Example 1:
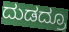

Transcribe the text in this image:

ದುಡದ್ರೂ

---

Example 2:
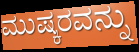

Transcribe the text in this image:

ಮುಷ್ಕರವನ್ನು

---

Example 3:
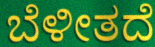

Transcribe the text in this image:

ಬೆಳೀತದೆ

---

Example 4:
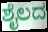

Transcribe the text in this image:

ಶೈಲದ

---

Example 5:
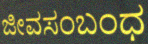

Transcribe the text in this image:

ಜೀವಸಂಬಂಧ